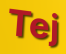
Tej